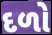
દળો